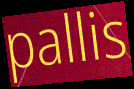
pallis